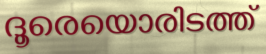
ദൂരെയൊരിടത്ത്